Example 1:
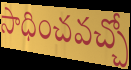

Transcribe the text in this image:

సాధించవచ్చో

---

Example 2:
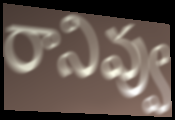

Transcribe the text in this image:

రానివ్వు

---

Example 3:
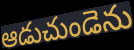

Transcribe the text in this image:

ఆడుచుండెను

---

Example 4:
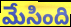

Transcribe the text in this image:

మేసింది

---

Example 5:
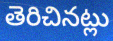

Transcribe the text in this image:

తెరిచినట్లు